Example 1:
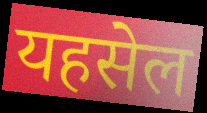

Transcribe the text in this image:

यहसेल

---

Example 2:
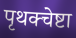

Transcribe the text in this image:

पृथक्चेष्टा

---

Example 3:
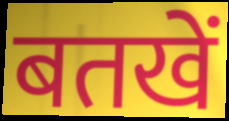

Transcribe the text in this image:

बतखें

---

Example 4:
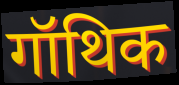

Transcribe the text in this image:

गॉथिक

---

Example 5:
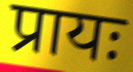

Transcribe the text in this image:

प्रायः